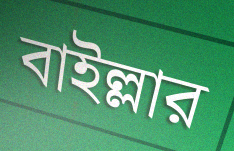
বাইল্লার